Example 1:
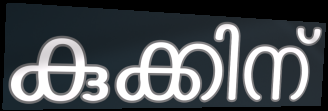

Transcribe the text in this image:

കുക്കിന്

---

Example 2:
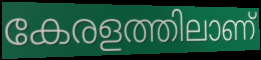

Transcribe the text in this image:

കേരളത്തിലാണ്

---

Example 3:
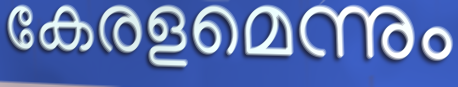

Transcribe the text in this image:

കേരളമെന്നും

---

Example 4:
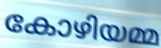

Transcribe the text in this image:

കോഴിയമ്മ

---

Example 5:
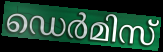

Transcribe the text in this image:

ഡെർമിസ്